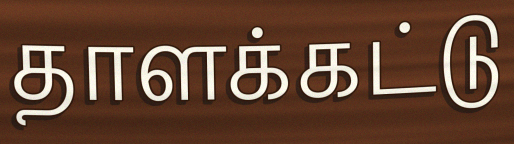
தாளக்கட்டு